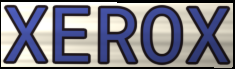
XEROX